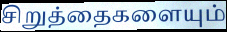
சிறுத்தைகளையும்